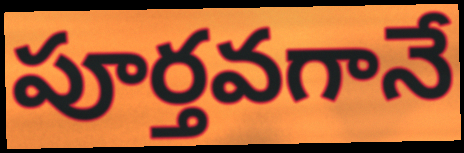
పూర్తవగానే